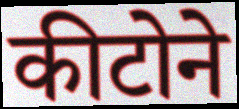
कीटोने